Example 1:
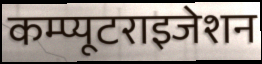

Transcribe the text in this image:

कम्प्यूटराइजेशन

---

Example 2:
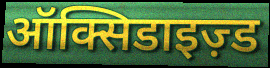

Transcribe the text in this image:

ऑक्सिडाइज़्ड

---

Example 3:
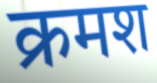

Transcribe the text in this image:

क्रमश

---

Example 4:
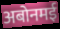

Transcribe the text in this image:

अबोनमई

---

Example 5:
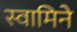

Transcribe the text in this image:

स्वामिने